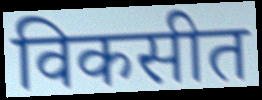
विकसीत